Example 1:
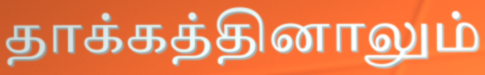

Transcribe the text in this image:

தாக்கத்தினாலும்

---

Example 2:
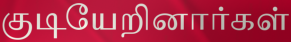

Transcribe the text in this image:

குடியேறினார்கள்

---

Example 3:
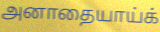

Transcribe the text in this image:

அனாதையாய்க்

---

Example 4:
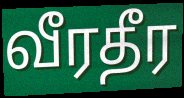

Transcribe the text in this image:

வீரதீர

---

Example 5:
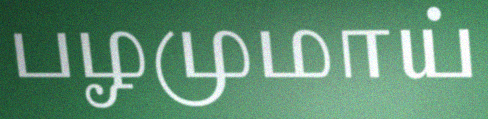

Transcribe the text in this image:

பழமுமாய்